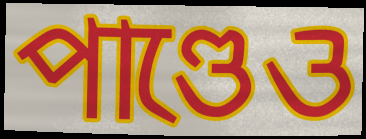
পাণ্ডেও